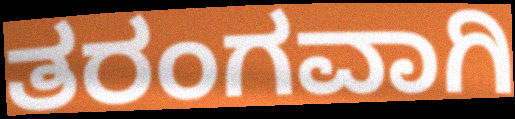
ತರಂಗವಾಗಿ